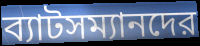
ব্যাটসম্যানদের